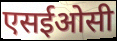
एसईओसी